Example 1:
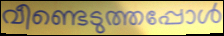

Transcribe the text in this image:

വീണ്ടെടുത്തപ്പോൾ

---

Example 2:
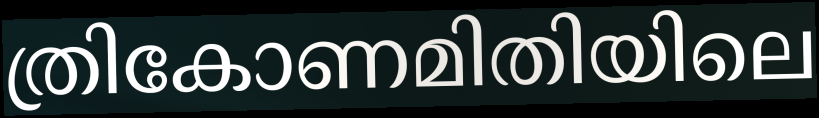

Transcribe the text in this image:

ത്രികോണമിതിയിലെ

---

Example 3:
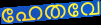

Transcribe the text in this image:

ഹേതവേ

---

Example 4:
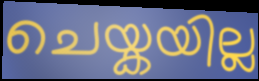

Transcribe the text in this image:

ചെയ്കയില്ല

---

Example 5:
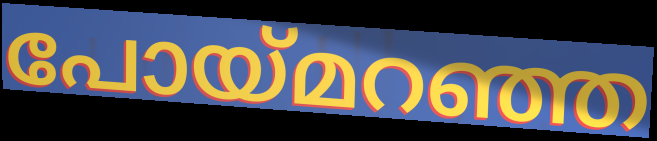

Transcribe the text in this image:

പോയ്മറഞ്ഞ